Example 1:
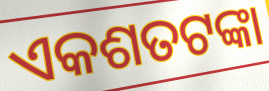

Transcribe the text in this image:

ଏକଶତଟଙ୍କା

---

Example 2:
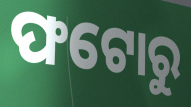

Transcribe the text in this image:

ଫଟୋରୁ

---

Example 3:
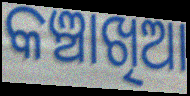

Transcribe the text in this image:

କଞ୍ଚାଖିଆ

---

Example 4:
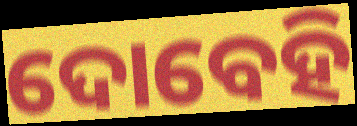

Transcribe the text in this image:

ଦୋବେହି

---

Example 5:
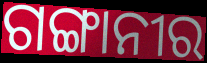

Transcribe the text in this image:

ଗଙ୍ଗାନୀର